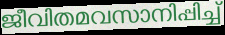
ജീവിതമവസാനിപ്പിച്ച്